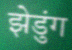
झेडुंग